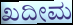
ಖದೀಮ